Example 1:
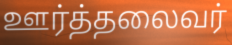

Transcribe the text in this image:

ஊர்த்தலைவர்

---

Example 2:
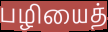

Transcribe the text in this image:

பழியைத்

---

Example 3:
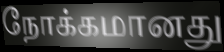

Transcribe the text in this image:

நோக்கமானது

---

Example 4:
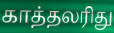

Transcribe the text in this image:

காத்தலரிது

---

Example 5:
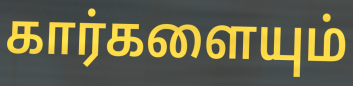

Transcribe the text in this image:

கார்களையும்